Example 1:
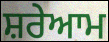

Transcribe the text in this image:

ਸ਼ਰੇਆਮ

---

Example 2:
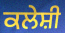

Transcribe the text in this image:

ਕਲੇਸ਼ੀ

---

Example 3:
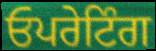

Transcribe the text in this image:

ਓਪਰੇਟਿੰਗ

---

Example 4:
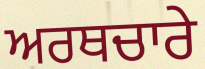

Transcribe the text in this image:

ਅਰਥਚਾਰੇ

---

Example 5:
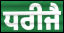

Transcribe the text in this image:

ਧਰੀਜੈ